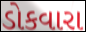
ડોકવારા